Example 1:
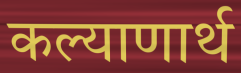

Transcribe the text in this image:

कल्याणार्थ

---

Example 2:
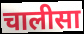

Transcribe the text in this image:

चालीसा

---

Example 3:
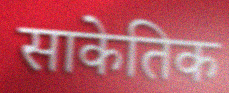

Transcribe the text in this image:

साकेतिक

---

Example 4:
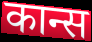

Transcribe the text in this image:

कान्स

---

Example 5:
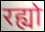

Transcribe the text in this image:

रह्यो